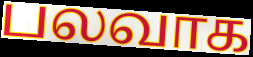
பலவாக